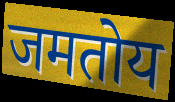
जमतोय